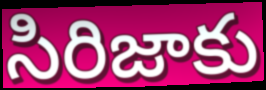
సిరిజాకు